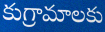
కుగ్రామాలకు